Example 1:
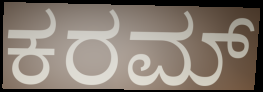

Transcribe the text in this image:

ಕರಮ್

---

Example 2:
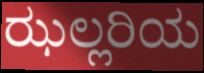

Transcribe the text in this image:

ಝಲ್ಲರಿಯ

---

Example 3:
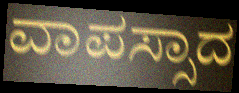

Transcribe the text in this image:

ವಾಪಸ್ಸಾದ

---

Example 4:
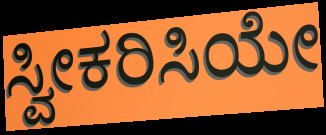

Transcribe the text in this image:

ಸ್ವೀಕರಿಸಿಯೇ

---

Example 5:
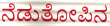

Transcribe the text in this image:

ನೆಡುತೋಪಿನ